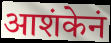
आशंकेनं